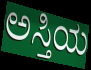
ಅಸ್ತಿಯ